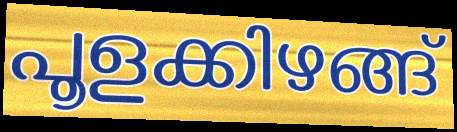
പൂളക്കിഴങ്ങ്